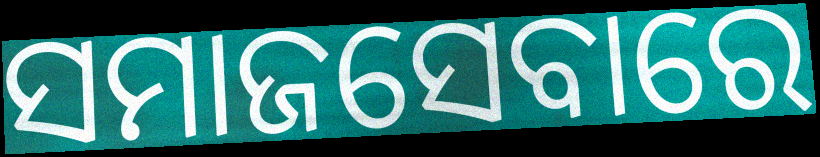
ସମାଜସେବାରେ